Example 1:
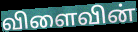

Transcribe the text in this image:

விளைவின்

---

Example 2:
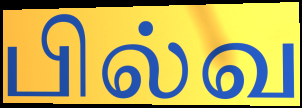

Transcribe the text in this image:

பில்வ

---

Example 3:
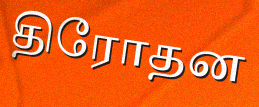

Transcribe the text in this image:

திரோதன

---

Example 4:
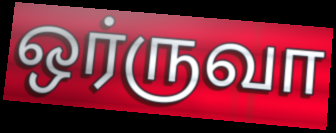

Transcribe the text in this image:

ஒர்ருவா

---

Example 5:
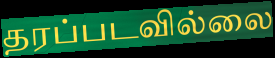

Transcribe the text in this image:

தரப்படவில்லை